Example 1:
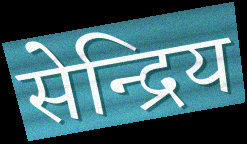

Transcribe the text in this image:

सेन्द्रिय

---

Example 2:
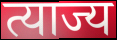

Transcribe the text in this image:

त्याज्य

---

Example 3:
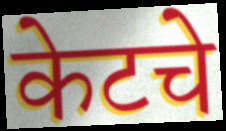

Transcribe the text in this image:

केटचे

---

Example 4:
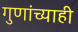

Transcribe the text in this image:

गुणांच्याही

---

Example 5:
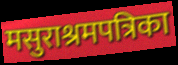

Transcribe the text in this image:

मसुराश्रमपत्रिका